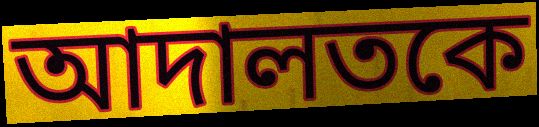
আদালতকে